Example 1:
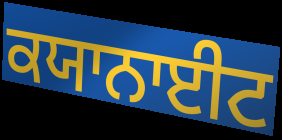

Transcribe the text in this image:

ਕਯਾਨਾਈਟ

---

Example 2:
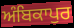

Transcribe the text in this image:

ਅੰਬਿਕਾਪੁਰ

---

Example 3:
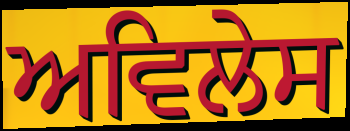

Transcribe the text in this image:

ਅਵਿਲੇਸ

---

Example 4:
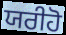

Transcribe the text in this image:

ਯਰੀਹੋ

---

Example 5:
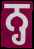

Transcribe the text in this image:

ਨ੍ਹ